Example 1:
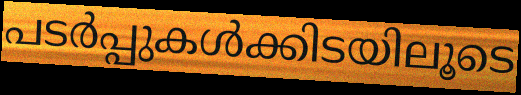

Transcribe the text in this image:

പടർപ്പുകൾക്കിടയിലൂടെ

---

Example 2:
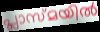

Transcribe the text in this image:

പ്ലാസ്മയിൽ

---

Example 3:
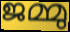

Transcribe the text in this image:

ജമ്മു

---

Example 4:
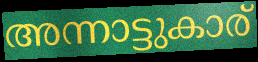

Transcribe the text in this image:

അന്നാട്ടുകാര്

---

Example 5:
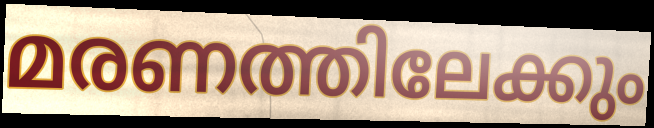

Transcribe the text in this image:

മരണത്തിലേക്കും